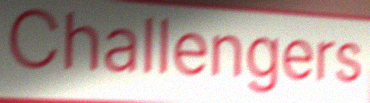
Challengers